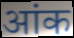
आंक